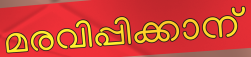
മരവിപ്പിക്കാന്